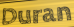
Duran